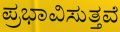
ಪ್ರಭಾವಿಸುತ್ತವೆ